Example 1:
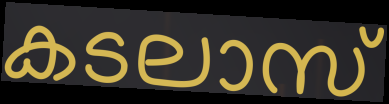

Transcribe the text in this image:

കടലാസ്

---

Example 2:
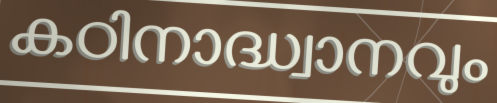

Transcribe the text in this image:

കഠിനാദ്ധ്വാനവും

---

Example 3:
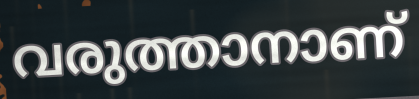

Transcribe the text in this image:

വരുത്താനാണ്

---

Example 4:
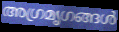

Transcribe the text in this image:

അഗ്രമൃഗങ്ങൾ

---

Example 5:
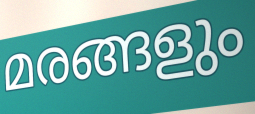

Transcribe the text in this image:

മരങ്ങളും